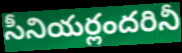
సీనియర్లందరినీ